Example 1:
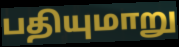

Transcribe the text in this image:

பதியுமாறு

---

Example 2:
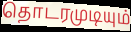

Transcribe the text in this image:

தொடரமுடியும்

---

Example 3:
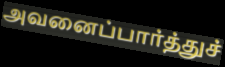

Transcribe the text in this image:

அவனைப்பார்த்துச்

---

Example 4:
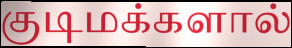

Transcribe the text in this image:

குடிமக்களால்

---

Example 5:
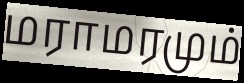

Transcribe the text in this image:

மராமரமும்